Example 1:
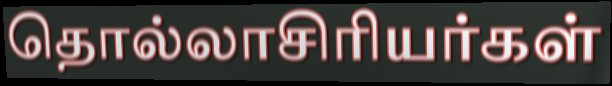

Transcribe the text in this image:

தொல்லாசிரியர்கள்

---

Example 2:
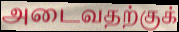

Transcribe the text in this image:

அடைவதற்குக்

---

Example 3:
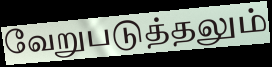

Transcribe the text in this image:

வேறுபடுத்தலும்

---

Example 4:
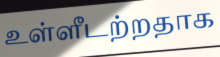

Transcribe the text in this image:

உள்ளீடற்றதாக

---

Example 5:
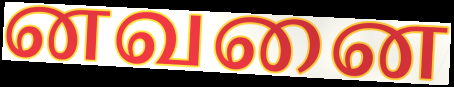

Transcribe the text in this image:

னவனை